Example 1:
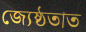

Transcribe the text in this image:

জ্যেষ্ঠতাত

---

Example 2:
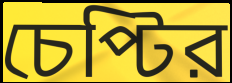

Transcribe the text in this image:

চেপ্টির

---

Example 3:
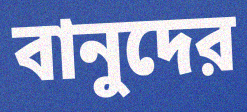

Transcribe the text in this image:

বানুদের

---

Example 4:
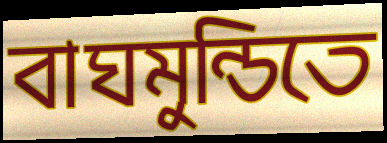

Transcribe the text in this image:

বাঘমুন্ডিতে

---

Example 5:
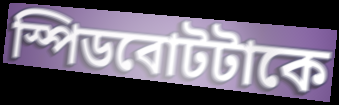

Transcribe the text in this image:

স্পিডবোটটাকে